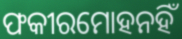
ଫକୀରମୋହନହିଁ